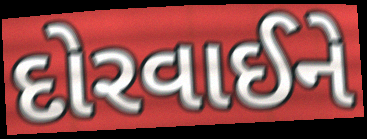
દોરવાઈને